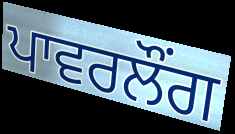
ਪਾਵਰਲੌਂਗ